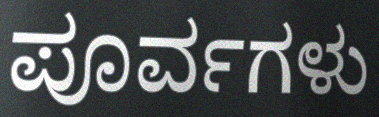
ಪೂರ್ವಗಳು